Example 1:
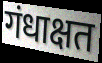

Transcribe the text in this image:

गंधाक्षत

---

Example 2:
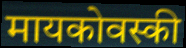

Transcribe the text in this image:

मायकोवस्की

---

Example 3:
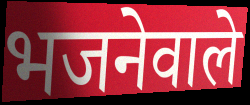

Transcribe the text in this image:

भजनेवाले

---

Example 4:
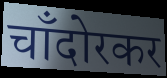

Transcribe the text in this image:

चाँदोरकर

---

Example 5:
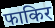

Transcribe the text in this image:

फाकिर